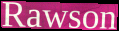
Rawson